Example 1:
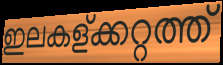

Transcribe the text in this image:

ഇലകള്ക്കറ്റത്ത്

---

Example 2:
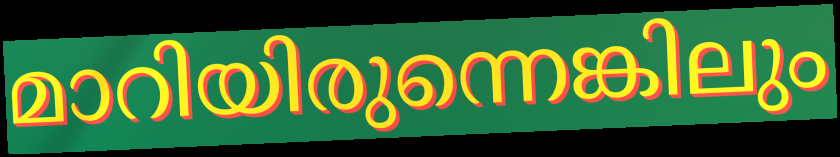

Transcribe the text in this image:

മാറിയിരുന്നെങ്കിലും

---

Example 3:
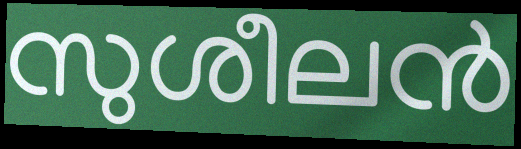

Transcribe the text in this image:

സുശീലൻ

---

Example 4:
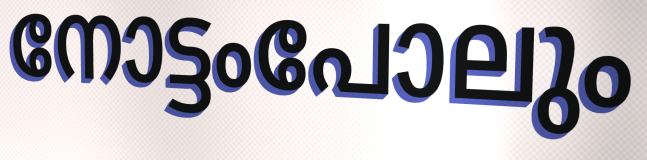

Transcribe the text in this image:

നോട്ടംപോലും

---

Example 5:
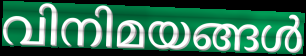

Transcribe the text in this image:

വിനിമയങ്ങൾ